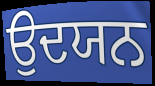
ਉਦਯਨ